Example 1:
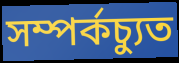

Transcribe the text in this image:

সম্পর্কচ্যুত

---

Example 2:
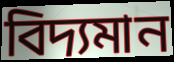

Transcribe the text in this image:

বিদ্যমান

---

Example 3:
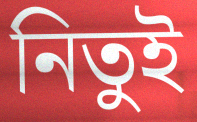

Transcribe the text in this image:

নিতুই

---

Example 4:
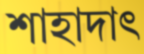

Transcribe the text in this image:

শাহাদাৎ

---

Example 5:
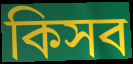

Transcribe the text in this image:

কিসব